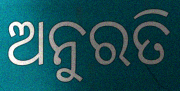
ଅନୁରତି